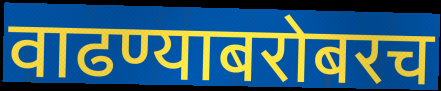
वाढण्याबरोबरच